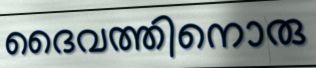
ദൈവത്തിനൊരു